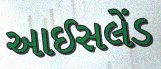
આઈસલેંડ